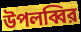
উপলব্বির